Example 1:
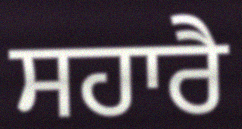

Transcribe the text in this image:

ਸਹਾਰੈ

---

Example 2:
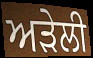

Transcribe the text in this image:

ਅੜੇਲੀ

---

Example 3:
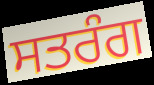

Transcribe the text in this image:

ਸਤਰੰਗ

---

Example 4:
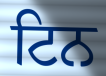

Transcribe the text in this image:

ਟਿਨ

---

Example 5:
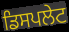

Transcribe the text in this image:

ਡਿਸਪਲੇਟ